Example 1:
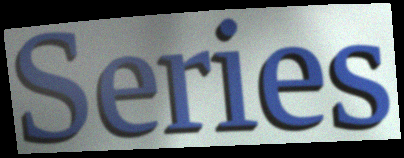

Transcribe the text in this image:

Series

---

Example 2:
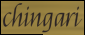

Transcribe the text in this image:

chingari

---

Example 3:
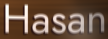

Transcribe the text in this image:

Hasan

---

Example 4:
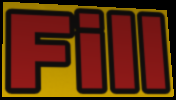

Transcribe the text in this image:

Fill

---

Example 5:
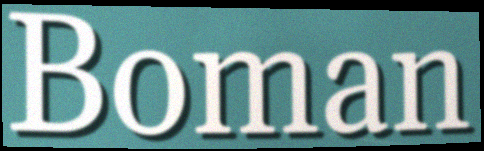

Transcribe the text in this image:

Boman